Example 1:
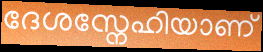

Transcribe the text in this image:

ദേശസ്നേഹിയാണ്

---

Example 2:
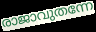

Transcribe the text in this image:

രാജാവുതന്നേ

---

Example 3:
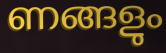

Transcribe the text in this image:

ണങ്ങളും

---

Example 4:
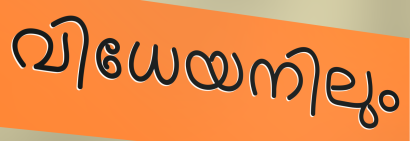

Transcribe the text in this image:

വിധേയനിലും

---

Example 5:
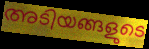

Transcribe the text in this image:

അടിയങ്ങളുടെ